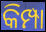
କିମ୍ପା